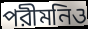
পরীমনিও